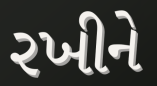
રખીને